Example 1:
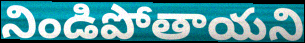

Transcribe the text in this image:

నిండిపోతాయని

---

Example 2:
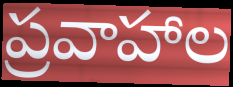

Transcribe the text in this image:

ప్రవాహాల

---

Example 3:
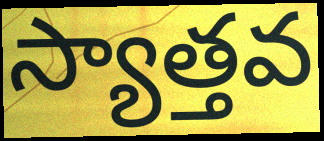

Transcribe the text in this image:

స్యాత్తవ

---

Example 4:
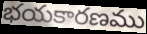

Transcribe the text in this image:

భయకారణము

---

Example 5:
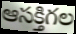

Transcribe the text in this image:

ఆసక్తిగల